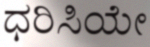
ಧರಿಸಿಯೇ